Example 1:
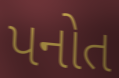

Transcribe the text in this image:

પનોત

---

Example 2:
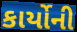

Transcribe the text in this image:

કાર્યોની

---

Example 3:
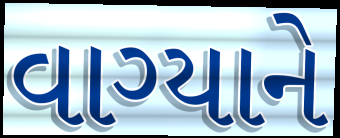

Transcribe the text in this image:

વાગ્યાને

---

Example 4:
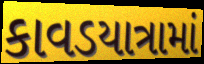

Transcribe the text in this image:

કાવડયાત્રામાં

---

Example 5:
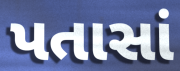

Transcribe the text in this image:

પતાસાં